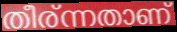
തീര്ന്നതാണ്